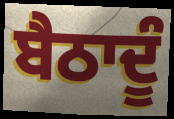
ਬੈਠਾਦੂੰ